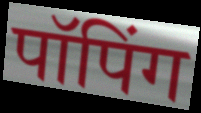
पॉपिंग